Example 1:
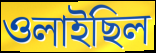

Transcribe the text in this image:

ওলাইছিল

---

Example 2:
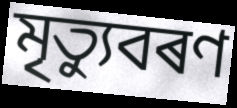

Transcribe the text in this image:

মৃত্যুবৰণ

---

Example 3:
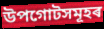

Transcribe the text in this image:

উপগোটসমূহৰ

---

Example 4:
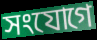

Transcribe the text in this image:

সংযোগে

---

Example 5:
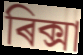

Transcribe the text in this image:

ৰিক্সা